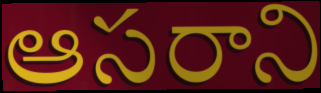
ఆసరాని